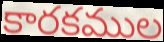
కారకముల